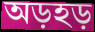
অড়হড়